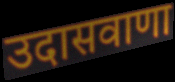
उदासवाणा